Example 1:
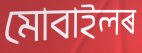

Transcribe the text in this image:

মোবাইলৰ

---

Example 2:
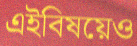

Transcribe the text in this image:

এইবিষয়েও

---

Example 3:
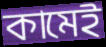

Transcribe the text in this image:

কামেই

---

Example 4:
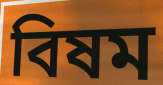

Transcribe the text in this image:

বিষম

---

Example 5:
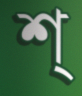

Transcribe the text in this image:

শ্